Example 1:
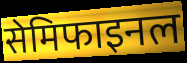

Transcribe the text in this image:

सेमिफाइनल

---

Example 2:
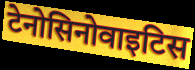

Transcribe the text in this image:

टेनोसिनोवाइटिस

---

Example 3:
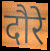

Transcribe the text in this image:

दौरे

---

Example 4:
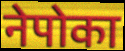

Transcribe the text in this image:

नेपोका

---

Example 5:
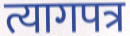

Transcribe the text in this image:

त्यागपत्र